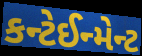
કન્ટેઈન્મેન્ટ